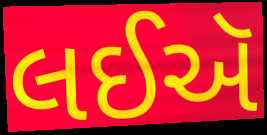
લઈઍ